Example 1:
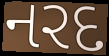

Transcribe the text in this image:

નરદ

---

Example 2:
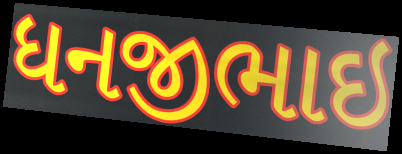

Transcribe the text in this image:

ધનજીભાઇ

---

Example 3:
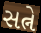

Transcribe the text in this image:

સત્ને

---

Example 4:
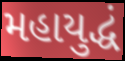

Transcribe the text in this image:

મહાયુદ્ધં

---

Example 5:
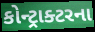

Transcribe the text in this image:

કોન્ટ્રાક્ટરના